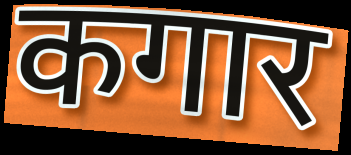
कगार